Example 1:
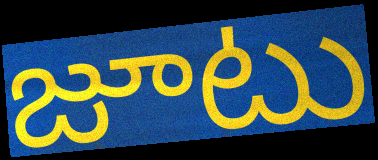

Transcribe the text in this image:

జూటు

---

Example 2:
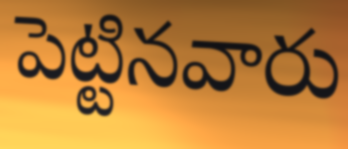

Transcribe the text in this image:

పెట్టినవారు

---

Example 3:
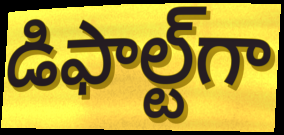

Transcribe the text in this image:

డిఫాల్ట్‌గా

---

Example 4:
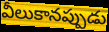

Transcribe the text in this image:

వీలుకానప్పుడు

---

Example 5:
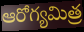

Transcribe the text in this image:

ఆరోగ్యమిత్ర